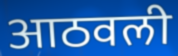
आठवली